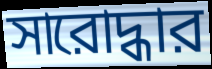
সারোদ্ধার